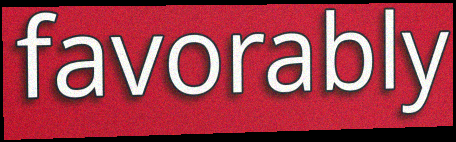
favorably